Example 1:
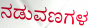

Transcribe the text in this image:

ನಡುವಣಗಳ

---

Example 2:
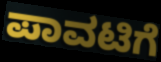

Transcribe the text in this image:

ಪಾವಟಿಗೆ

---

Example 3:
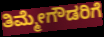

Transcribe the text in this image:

ತಿಮ್ಮೇಗೌಡರಿಗೆ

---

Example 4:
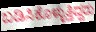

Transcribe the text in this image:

ಬಡಿಸಿಕೊಳ್ಳುತ್ತಿದ್ದರು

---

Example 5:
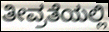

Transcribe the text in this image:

ತೀವ್ರತೆಯಲ್ಲಿ